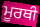
ਮੂਰਥੀ